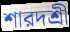
শারদশ্রী